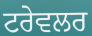
ਟਰੇਵਲਰ